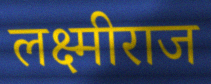
लक्ष्मीराज